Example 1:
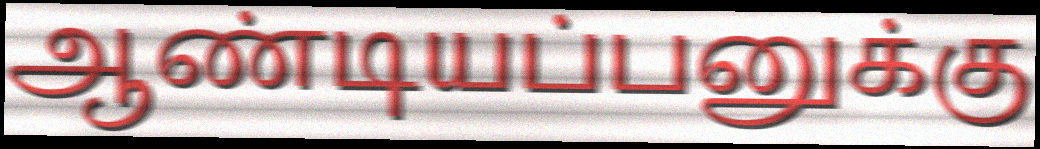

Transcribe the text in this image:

ஆண்டியப்பனுக்கு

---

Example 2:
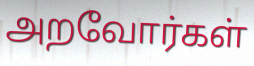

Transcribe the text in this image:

அறவோர்கள்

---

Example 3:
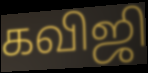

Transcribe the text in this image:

கவிஜி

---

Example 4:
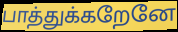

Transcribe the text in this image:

பாத்துக்கறேனே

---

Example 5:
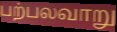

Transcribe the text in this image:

பற்பலவாறு